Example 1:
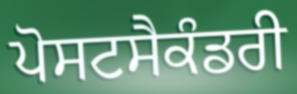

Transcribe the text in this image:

ਪੋਸਟਸੈਕੰਡਰੀ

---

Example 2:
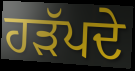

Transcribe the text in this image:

ਹੜੱਪਦੇ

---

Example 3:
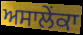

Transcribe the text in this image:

ਅਸਾਲੇਂਕਾ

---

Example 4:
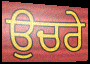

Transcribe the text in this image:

ਉਚਰੇ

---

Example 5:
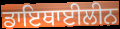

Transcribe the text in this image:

ਡਾਇਥਾਈਲੀਨ